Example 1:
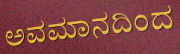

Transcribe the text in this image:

ಅವಮಾನದಿಂದ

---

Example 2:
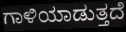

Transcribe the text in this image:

ಗಾಳಿಯಾಡುತ್ತದೆ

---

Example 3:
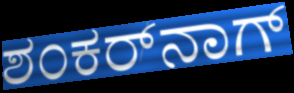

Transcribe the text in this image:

ಶಂಕರ್‌ನಾಗ್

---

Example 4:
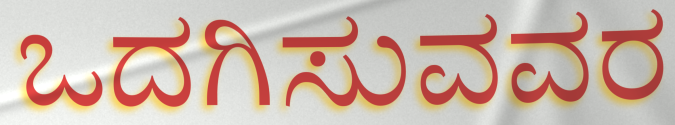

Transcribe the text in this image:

ಒದಗಿಸುವವರ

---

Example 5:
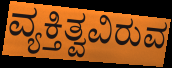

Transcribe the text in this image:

ವ್ಯಕ್ತಿತ್ವವಿರುವ